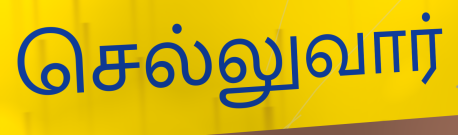
செல்லுவார்